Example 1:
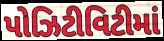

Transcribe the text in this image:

પોઝિટીવિટીમાં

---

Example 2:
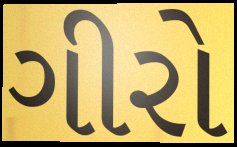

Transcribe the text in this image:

ગીરો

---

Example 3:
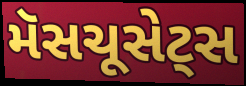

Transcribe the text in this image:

મૅસચૂસેટ્સ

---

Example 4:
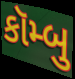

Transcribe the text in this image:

કૉમ્બુ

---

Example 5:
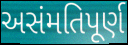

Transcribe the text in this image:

અસંમતિપૂર્ણ